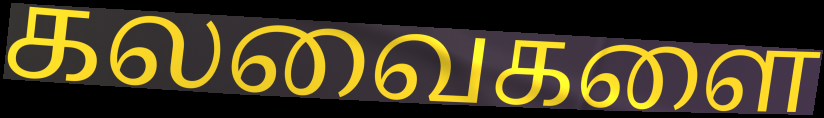
கலவைகளை